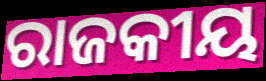
ରାଜକୀୟ